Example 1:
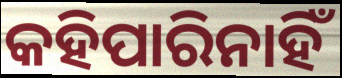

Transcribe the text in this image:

କହିପାରିନାହିଁ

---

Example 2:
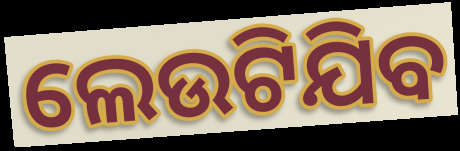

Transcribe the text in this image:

ଲେଉଟିଯିବ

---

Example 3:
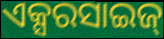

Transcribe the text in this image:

ଏକ୍ସରସାଇଜ୍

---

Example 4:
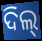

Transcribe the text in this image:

ଦିଲ୍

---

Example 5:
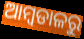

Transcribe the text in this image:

ଆମ୍ବଡାଳରୁ